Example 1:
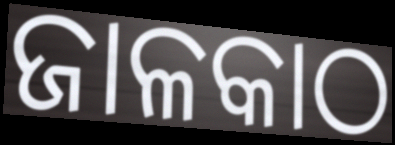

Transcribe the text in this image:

ଜାଳକାଠ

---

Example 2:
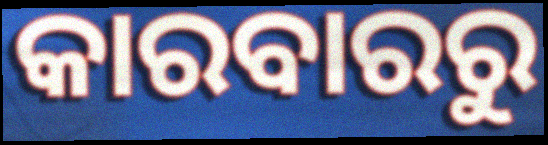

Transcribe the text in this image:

କାରବାରରୁ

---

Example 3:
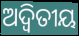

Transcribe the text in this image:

ଅଦ୍ୱିତୀୟ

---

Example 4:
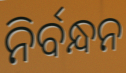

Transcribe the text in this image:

ନିର୍ବନ୍ଧନ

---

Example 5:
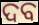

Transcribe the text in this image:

ଦବ